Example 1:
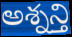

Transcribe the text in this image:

అశ్నన్తి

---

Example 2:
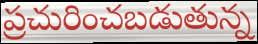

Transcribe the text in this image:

ప్రచురించబడుతున్న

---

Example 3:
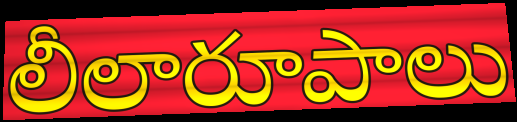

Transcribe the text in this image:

లీలారూపాలు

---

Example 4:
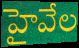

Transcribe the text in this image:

హైవేల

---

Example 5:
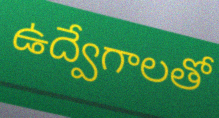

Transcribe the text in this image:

ఉద్వేగాలతో